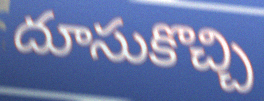
దూసుకొచ్చి